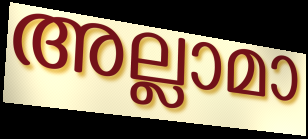
അല്ലാമാ